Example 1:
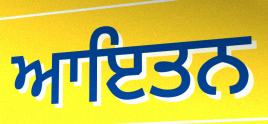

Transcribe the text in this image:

ਆਇਤਨ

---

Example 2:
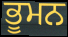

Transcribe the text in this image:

ਭੂਮਨ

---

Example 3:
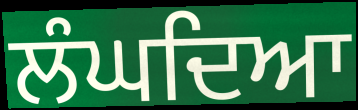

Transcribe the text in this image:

ਲੰਘਦਿਆ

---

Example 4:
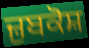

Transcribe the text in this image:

ਜ਼ੁਬਕੋਸ਼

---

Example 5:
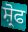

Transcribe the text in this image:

ਸ਼੍ਰੋਫ